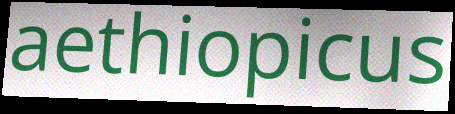
aethiopicus